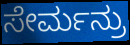
ಸೇರ್ಮನ್ರು